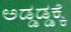
ಅಡ್ಡಡ್ಡಕ್ಕೆ